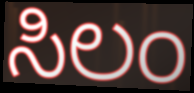
ಸಿಲಂ